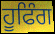
ਹੂਫਿੰਗ